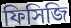
ফিসিজি